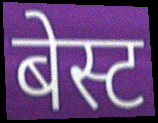
बेस्ट